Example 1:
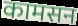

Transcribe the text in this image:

कामसन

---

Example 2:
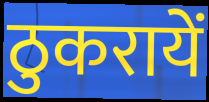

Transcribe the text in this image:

ठुकरायें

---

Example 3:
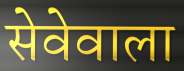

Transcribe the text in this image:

सेवेवाला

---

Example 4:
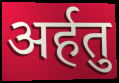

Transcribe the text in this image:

अर्हतु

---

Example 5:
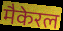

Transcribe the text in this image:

मैकेरल